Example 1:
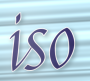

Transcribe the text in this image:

iso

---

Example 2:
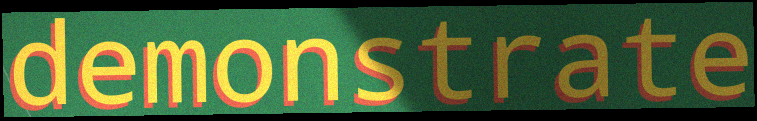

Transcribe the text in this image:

demonstrate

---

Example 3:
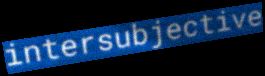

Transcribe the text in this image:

intersubjective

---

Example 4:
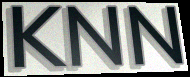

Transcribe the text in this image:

KNN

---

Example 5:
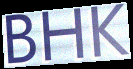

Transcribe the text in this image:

BHK